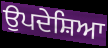
ਉਪਦੇਸ਼ਿਆ